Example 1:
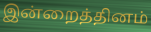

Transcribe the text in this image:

இன்றைத்தினம்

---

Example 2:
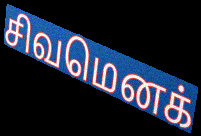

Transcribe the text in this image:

சிவமெனக்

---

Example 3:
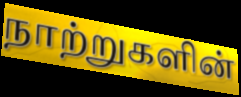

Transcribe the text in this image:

நாற்றுகளின்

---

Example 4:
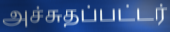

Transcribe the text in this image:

அச்சுதப்பட்டர்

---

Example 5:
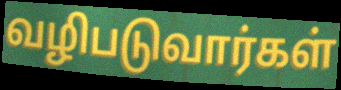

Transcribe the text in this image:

வழிபடுவார்கள்